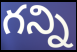
గన్ని